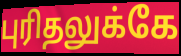
புரிதலுக்கே